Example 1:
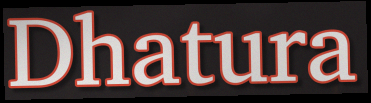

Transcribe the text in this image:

Dhatura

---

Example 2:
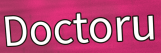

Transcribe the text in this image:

Doctoru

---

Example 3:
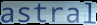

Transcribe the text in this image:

astral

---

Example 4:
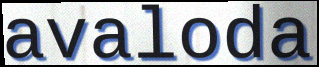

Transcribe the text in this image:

avaloda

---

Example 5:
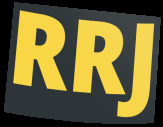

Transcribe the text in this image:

RRJ